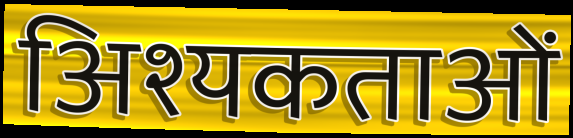
अिश्यकताओं